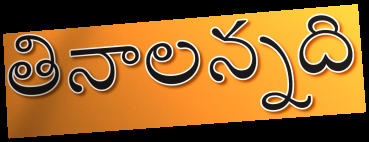
తినాలన్నది